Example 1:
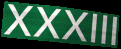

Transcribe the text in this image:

XXXIII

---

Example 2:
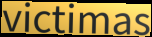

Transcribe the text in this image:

victimas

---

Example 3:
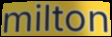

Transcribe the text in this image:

milton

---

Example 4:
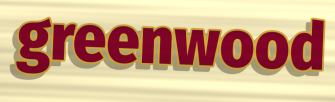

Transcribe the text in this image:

greenwood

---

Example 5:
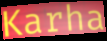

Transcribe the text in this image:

Karha